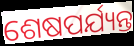
ଶେଷପର୍ଯ୍ୟନ୍ତ